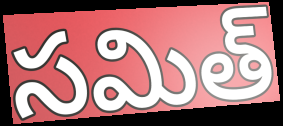
సమిత్